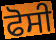
ਫੋਸੀ